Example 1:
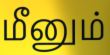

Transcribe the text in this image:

மீனும்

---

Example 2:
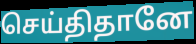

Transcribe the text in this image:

செய்திதானே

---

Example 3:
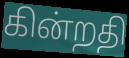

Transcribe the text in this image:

கின்றதி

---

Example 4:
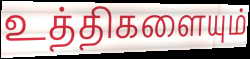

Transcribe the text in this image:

உத்திகளையும்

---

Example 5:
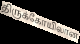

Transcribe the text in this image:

திருக்கோயிலான